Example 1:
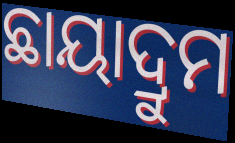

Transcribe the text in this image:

ଛାୟାଦ୍ରୁମ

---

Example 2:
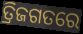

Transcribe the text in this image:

ତ୍ରିଜଗତରେ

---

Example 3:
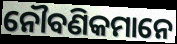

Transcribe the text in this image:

ନୌବଣିକମାନେ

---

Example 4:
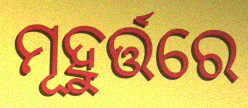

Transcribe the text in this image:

ମୂହୁର୍ତ୍ତରେ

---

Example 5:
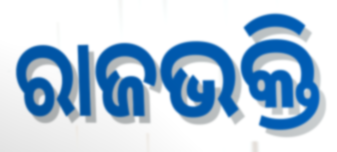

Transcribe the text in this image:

ରାଜଭକ୍ତି